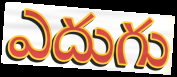
ఎదుగు